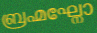
ബ്രഹ്മഘ്നോ